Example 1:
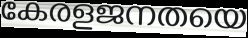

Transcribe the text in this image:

കേരളജനതയെ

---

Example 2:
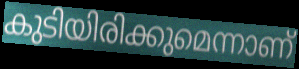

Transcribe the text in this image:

കുടിയിരിക്കുമെന്നാണ്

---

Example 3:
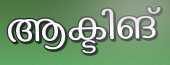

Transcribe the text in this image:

ആക്ടിങ്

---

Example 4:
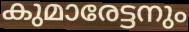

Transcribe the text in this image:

കുമാരേട്ടനും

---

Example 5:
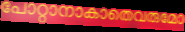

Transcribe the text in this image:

പോറ്റാനാകാതെവരുമോ